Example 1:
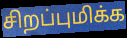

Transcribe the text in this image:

சிறப்புமிக்க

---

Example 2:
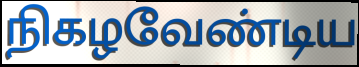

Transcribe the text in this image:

நிகழவேண்டிய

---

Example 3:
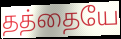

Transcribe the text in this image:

தத்தையே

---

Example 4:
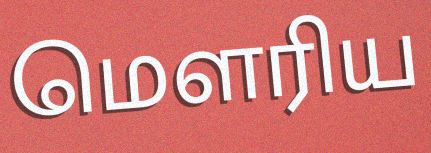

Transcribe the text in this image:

மௌரிய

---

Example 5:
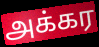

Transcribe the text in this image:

அக்கர